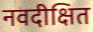
नवदीक्षित